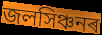
জলসিঞ্চনৰ